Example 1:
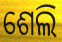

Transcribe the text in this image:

ଶେଲି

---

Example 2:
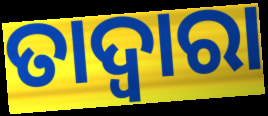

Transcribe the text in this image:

ତାଦ୍ବାରା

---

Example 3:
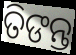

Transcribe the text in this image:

ତିଙନ୍ତ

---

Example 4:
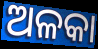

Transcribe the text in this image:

ଅଳକା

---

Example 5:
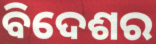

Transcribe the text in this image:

ବିଦେଶର